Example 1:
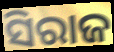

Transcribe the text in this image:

ସିରାଜ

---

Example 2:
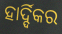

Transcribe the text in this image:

ହାର୍ଦ୍ଦିକର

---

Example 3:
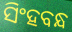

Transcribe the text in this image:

ସିଂହବନ୍ଧ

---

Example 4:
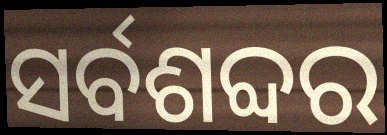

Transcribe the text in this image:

ସର୍ବଶବ୍ଦର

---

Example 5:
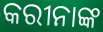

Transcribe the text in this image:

କରୀନାଙ୍କ